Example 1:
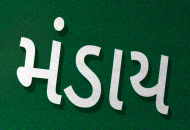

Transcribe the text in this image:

મંડાય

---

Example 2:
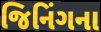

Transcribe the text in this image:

જિનિંગના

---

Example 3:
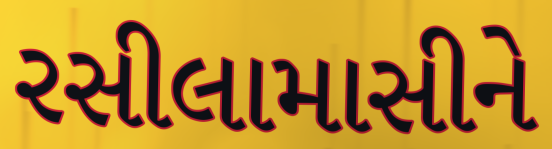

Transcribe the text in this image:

રસીલામાસીને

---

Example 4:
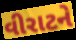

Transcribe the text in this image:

વીરાટને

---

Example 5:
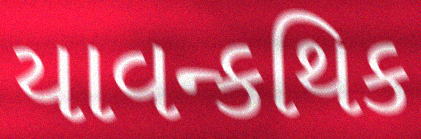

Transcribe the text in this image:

યાવન્કથિક